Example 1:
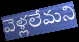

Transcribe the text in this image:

వెళ్లలేమని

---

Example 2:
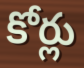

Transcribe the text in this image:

కోర్లు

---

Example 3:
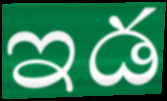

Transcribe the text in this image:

ఇడ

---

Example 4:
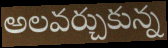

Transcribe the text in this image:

అలవర్చుకున్న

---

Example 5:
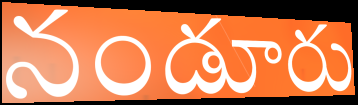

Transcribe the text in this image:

నండూరు